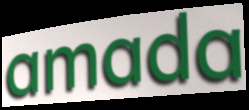
amada